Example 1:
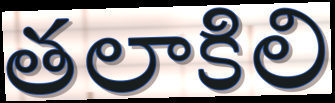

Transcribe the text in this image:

తలాకిలి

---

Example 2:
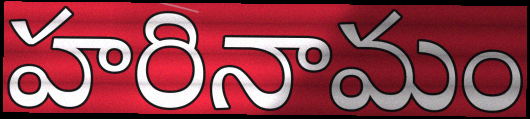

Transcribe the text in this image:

హరినామం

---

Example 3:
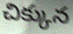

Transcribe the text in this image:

చిక్కున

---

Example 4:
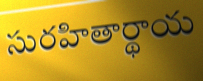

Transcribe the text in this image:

సురహితార్థాయ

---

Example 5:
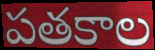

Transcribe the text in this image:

పతకాల